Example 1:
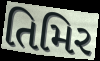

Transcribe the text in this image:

તિમિર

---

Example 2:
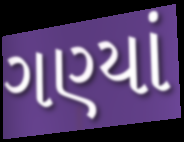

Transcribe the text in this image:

ગણ્યાં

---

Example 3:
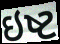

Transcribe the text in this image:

ઇષ્ટ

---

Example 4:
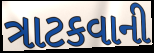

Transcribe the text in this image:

ત્રાટકવાની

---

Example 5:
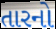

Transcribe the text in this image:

તારનો